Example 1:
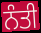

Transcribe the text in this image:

ਨੰਤੀ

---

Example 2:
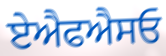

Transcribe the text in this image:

ਏਐਫਐਸਓ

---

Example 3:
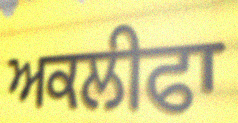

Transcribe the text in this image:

ਅਕਲੀਫਾ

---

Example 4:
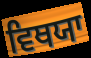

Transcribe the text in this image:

ਵਿਥਯਾ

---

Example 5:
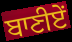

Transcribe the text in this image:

ਬਾਣੀਏਂ